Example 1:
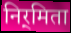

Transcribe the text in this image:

निर्मिता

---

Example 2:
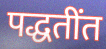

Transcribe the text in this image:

पद्धतींत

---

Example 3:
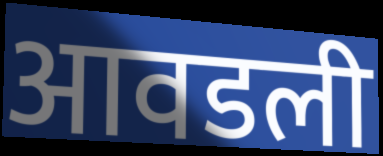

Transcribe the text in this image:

आवडली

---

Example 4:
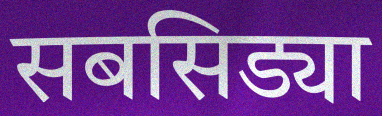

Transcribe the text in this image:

सबसिड्या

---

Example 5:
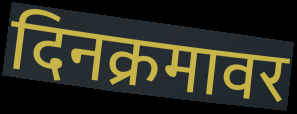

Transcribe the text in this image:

दिनक्रमावर